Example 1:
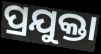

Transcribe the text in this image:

ପ୍ରଯୁକ୍ତା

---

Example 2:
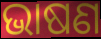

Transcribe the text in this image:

ଭାଷଣ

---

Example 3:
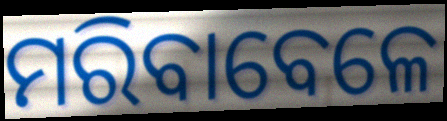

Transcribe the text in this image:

ମରିବାବେଳେ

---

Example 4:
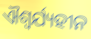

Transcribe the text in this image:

ଐଶ୍ଵର୍ଯ୍ୟହୀନ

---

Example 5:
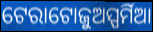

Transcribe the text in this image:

ଟେରାଟୋଜୁଅସ୍ପର୍ମିଆ